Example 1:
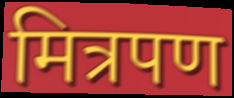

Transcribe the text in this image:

मित्रपण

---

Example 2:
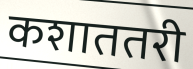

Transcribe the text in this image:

कशाततरी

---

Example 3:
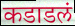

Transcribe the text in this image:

कडाडलं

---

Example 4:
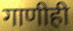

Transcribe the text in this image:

गाणीही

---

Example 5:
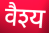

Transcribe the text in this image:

वैश्य